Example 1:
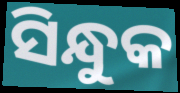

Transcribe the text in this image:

ସିନ୍ଧୁକ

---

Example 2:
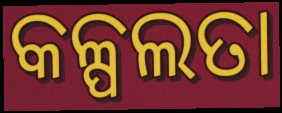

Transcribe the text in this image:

କଳ୍ପଲତା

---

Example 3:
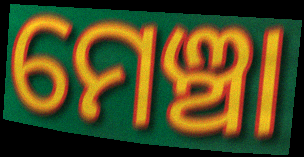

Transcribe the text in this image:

ମେଞ୍ଚା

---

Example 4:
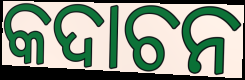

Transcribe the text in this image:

କଦାଚନ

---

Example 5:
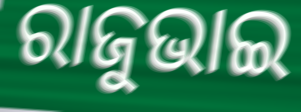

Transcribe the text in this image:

ରାଜୁଭାଇ